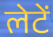
लेटें